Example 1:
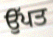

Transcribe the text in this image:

ਉੱਪਤ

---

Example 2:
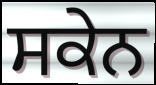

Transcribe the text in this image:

ਸਕੇਨ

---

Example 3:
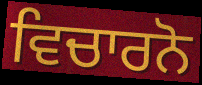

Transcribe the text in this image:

ਵਿਚਾਰਨੋ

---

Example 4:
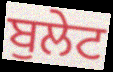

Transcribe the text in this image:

ਬੁਲੇਟ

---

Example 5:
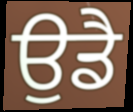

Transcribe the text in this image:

ਉਡੈ